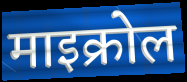
माइक्रोल